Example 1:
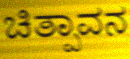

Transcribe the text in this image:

ಚಿತ್ಪಾವನ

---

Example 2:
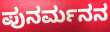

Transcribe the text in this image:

ಪುನರ್ಮನನ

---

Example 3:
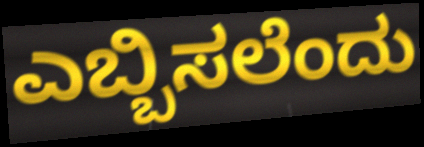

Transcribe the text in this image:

ಎಬ್ಬಿಸಲೆಂದು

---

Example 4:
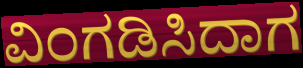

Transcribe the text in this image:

ವಿಂಗಡಿಸಿದಾಗ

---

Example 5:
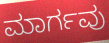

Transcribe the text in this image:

ಮಾರ್ಗವು